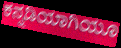
ಕನ್ನಡಿಯಾಗಿಯೂ